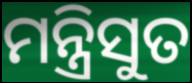
ମନ୍ତ୍ରିସୁତ